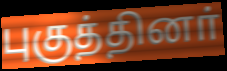
புகுத்தினர்